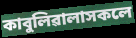
কাবুলিৱালাসকলে